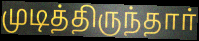
முடித்திருந்தார்